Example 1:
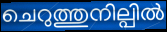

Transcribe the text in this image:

ചെറുത്തുനില്പിൽ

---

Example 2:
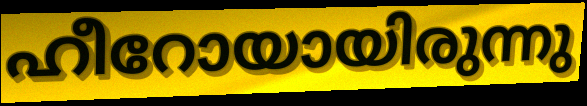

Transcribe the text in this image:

ഹീറോയായിരുന്നു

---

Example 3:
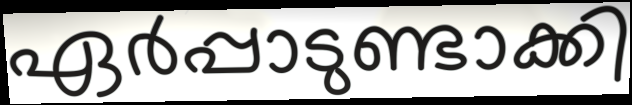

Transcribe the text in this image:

ഏർപ്പാടുണ്ടാക്കി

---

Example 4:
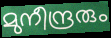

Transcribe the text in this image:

മുനീന്ദ്രരും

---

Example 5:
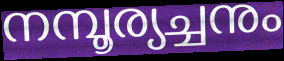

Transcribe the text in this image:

നമ്പൂര്യച്ചനും